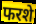
फरशे